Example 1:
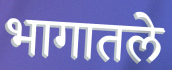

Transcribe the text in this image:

भागातले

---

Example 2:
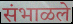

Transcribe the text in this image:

संभाळले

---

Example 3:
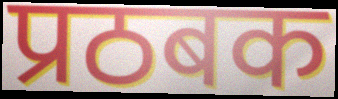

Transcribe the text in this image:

प्रठबक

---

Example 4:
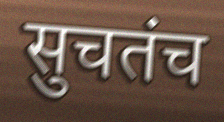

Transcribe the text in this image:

सुचतंच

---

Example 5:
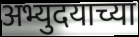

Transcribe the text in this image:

अभ्युदयाच्या